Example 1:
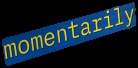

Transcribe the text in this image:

momentarily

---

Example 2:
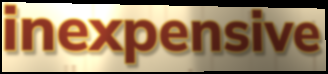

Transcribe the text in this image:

inexpensive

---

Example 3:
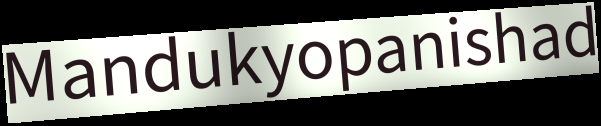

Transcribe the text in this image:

Mandukyopanishad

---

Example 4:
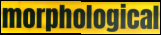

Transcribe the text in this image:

morphological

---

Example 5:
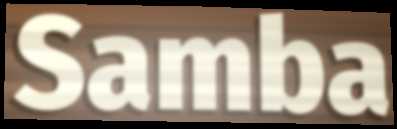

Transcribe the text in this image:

Samba